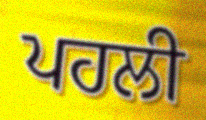
ਪਹਲੀ